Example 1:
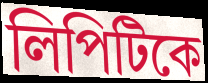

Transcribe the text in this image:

লিপিটিকে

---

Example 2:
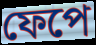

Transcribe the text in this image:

ফেপে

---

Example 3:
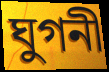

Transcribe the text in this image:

ঘুগনী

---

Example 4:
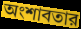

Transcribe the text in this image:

অংশাবতার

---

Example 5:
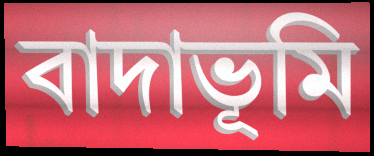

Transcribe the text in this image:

বাদাভূমি